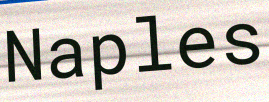
Naples